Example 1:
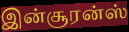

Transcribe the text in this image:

இன்சூரன்ஸ்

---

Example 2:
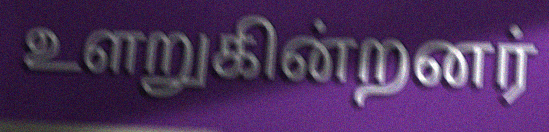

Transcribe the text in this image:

உளறுகின்றனர்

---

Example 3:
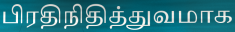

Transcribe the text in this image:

பிரதிநிதித்துவமாக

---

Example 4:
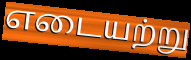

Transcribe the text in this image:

எடையற்று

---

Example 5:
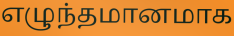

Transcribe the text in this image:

எழுந்தமானமாக